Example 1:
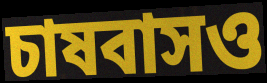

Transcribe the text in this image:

চাষবাসও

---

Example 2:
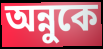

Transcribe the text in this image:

অন্নুকে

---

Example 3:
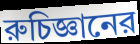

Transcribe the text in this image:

রুচিজ্ঞানের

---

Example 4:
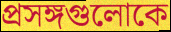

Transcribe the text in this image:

প্রসঙ্গগুলোকে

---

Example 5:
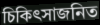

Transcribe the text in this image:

চিকিৎসাজনিত